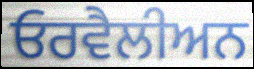
ਓਰਵੈਲੀਅਨ